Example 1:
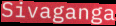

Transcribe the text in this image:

Sivaganga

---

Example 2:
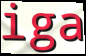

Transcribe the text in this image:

iga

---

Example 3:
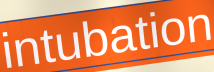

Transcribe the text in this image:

intubation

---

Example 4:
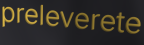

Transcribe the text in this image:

preleverete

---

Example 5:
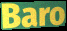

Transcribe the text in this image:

Baro